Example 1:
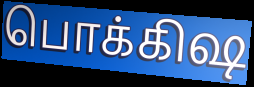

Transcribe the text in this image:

பொக்கிஷ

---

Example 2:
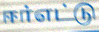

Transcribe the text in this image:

ஈர்எட்டு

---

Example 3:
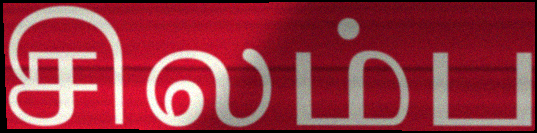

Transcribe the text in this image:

சிலம்ப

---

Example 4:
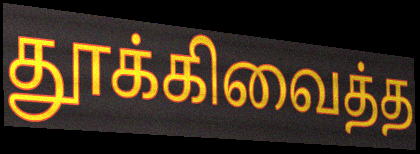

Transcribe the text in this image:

தூக்கிவைத்த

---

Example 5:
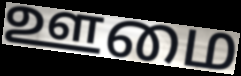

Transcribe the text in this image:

ஊமை